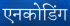
एनकोडिंग